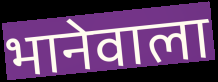
भानेवाला